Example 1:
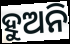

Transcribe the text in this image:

ହୁଅନି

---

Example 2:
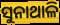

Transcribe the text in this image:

ସୁନାଥାଳି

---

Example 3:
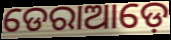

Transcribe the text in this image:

ଡେରାଆଡ଼େ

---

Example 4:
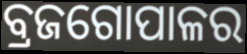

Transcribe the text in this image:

ବ୍ରଜଗୋପାଳର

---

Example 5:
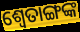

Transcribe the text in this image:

ଶ୍ବେତାଙ୍ଗଙ୍କ